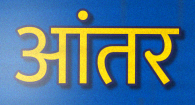
आंतर